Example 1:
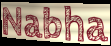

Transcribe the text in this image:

Nabha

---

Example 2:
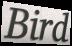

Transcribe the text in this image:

Bird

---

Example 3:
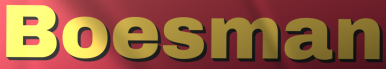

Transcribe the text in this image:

Boesman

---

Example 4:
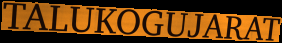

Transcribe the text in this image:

TALUKOGUJARAT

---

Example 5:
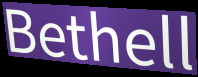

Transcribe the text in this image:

Bethell